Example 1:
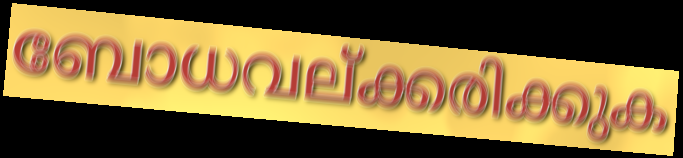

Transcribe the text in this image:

ബോധവല്ക്കരിക്കുക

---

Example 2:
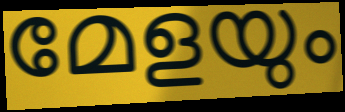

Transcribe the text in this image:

മേളയും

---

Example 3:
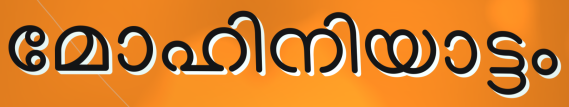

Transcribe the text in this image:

മോഹിനിയാട്ടം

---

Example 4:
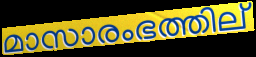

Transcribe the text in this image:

മാസാരംഭത്തില്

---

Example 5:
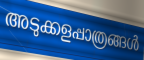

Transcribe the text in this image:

അടുക്കളപ്പാത്രങ്ങൾ